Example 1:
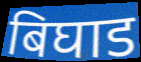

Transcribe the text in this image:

बिघाड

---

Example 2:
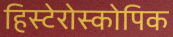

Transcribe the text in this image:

हिस्टेरोस्कोपिक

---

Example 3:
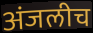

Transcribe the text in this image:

अंजलीच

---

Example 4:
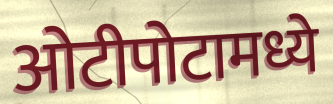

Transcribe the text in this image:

ओटीपोटामध्ये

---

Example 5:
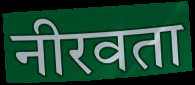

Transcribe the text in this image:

नीरवता